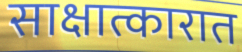
साक्षात्कारात